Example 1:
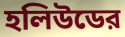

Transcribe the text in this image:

হলিউডের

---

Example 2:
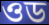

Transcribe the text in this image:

ওড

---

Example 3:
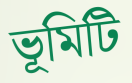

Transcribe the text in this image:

ভূমিটি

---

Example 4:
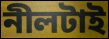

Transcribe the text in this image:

নীলটাই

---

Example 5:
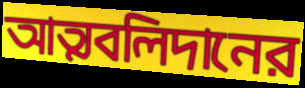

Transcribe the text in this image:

আত্মবলিদানের